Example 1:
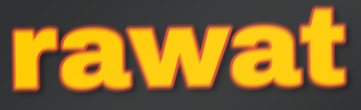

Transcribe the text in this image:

rawat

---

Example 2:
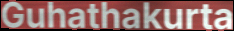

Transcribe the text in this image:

Guhathakurta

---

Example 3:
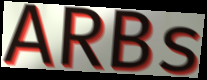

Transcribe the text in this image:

ARBs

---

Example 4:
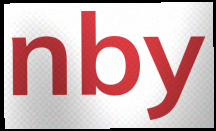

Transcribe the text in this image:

nby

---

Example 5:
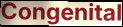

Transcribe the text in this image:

Congenital